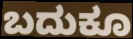
ಬದುಕೂ